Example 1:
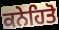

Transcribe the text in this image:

ਕਨੇਹਿਤੋ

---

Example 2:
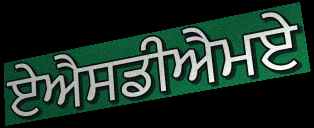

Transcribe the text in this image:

ਏਐਸਡੀਐਮਏ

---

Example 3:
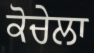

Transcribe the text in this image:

ਕੋਚੇਲਾ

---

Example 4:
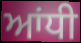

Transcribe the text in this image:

ਆਂਧੀ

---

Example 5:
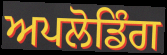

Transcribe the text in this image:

ਅਪਲੋਡਿੰਗ